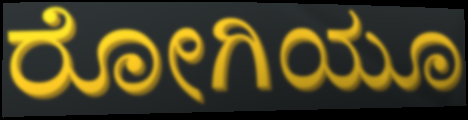
ರೋಗಿಯೂ